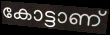
കോട്ടാണ്